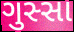
ગુસ્સા